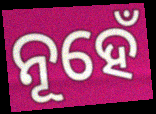
ନୂହେଁ